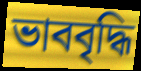
ভাববৃদ্ধি